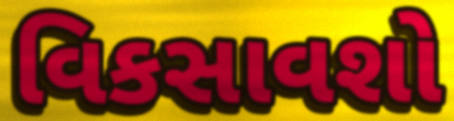
વિકસાવશો